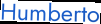
Humberto